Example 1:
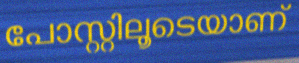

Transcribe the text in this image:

പോസ്റ്റിലൂടെയാണ്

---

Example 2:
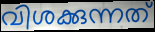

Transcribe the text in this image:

വിശക്കുന്നത്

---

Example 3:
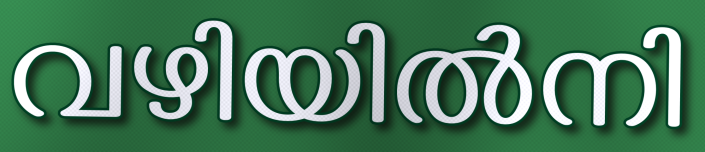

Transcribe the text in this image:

വഴിയിൽനി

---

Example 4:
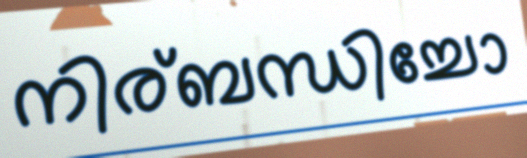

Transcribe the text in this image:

നിര്ബന്ധിച്ചോ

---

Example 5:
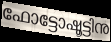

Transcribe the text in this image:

ഫോട്ടോഷൂട്ടിനു